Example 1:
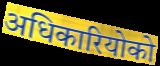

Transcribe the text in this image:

अधिकारियोको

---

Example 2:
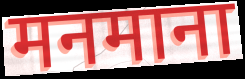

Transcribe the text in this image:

मनमाना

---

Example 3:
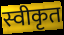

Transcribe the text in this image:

स्‍वीकृत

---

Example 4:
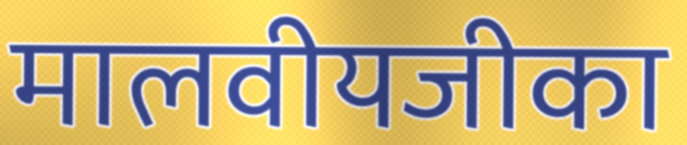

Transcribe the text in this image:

मालवीयजीका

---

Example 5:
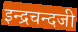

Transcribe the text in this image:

इन्द्रचन्दजी